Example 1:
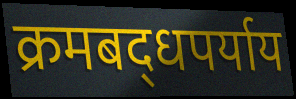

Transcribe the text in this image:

क्रमबद्धपर्याय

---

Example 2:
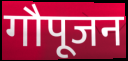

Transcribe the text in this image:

गौपूजन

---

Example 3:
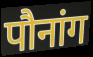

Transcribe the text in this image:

पौनांग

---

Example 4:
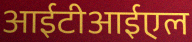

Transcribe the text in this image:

आईटीआईएल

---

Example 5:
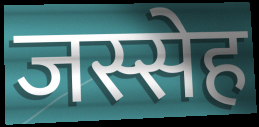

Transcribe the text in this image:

जस्सेह